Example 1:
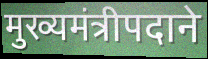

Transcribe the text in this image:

मुख्यमंत्रीपदाने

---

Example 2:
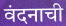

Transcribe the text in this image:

वंदनाची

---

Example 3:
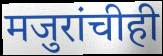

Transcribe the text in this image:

मजुरांचीही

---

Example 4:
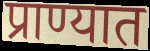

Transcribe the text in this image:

प्राण्यात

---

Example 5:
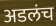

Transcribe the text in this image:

अडलंच